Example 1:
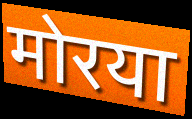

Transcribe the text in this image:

मोरया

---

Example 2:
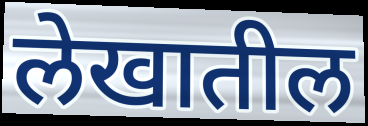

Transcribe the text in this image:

लेखातील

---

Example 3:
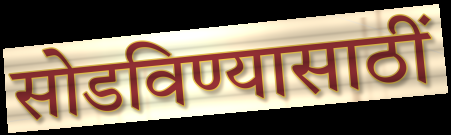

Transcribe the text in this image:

सोडविण्यासाठीं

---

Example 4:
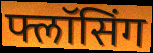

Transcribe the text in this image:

फ्लॉसिंग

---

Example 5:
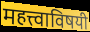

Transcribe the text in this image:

महत्त्वाविषयी